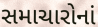
સમાચારોનાં